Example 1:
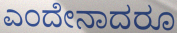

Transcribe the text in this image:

ಎಂದೇನಾದರೂ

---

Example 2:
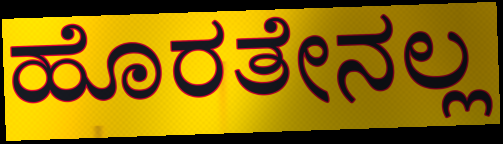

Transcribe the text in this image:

ಹೊರತೇನಲ್ಲ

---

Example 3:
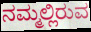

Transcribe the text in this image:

ನಮ್ಮಲ್ಲಿರುವ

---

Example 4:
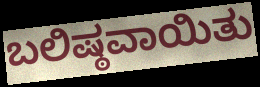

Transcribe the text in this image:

ಬಲಿಷ್ಠವಾಯಿತು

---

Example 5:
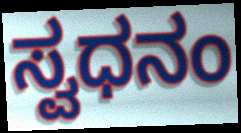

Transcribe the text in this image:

ಸ್ವಧನಂ